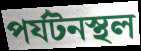
পর্যটনস্থল